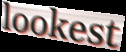
lookest